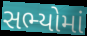
સભ્યોમાં